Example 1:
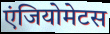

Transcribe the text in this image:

एंजियोमेटस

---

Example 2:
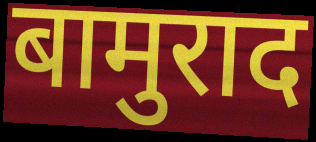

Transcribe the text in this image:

बामुराद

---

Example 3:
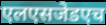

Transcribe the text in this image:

एलएसजेडएच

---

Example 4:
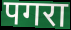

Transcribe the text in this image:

पगरा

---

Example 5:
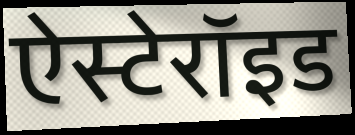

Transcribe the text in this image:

ऐस्टेरॉइड